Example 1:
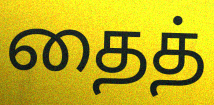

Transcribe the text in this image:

தைத்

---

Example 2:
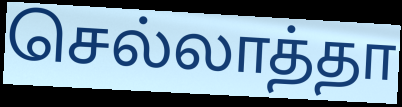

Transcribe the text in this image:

செல்லாத்தா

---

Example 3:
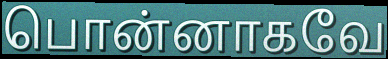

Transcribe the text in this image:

பொன்னாகவே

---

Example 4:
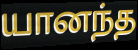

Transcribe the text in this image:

யானந்த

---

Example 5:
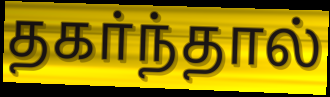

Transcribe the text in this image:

தகர்ந்தால்